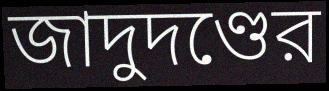
জাদুদণ্ডের